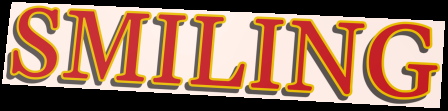
SMILING